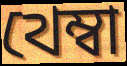
থেম্বা